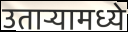
उतार्‍यामध्ये